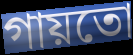
গায়তো